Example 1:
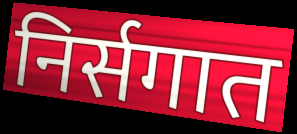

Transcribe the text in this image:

निर्सगात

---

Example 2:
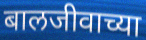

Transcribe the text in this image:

बालजीवाच्या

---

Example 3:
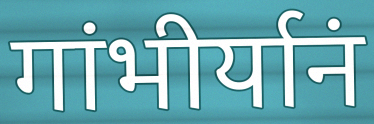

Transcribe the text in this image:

गांभीर्यानं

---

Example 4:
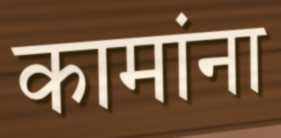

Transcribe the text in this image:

कामांना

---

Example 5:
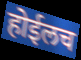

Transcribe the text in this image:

होईलच